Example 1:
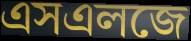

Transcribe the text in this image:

এসএলজে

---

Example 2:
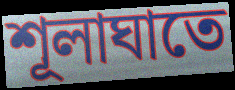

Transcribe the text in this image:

শূলাঘাতে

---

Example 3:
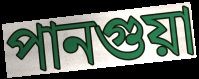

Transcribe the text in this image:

পানগুয়া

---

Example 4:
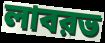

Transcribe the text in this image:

লাবরভ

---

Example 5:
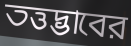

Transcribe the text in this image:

তত্তদ্ভাবের